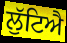
ਲੁੱਟਿਐ